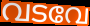
വടവേ